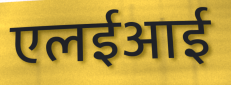
एलईआई